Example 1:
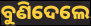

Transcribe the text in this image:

ବୁଣିଦେଲେ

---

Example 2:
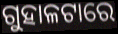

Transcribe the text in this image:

ଗୁହାଳଟାରେ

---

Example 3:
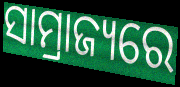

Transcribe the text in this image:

ସାମ୍ରାଜ୍ୟରେ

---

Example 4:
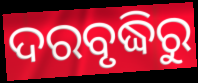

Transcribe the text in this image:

ଦରବୃଦ୍ଧିରୁ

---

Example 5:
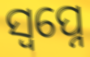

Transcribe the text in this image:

ସ୍ବପ୍ନେ